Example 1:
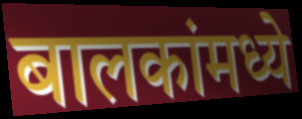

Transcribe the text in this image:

बालकांमध्ये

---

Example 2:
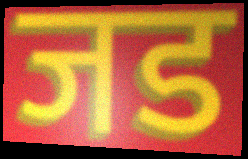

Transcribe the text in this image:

जड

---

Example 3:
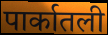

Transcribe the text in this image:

पार्कातली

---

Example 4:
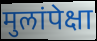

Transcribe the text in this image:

मुलांपेक्षा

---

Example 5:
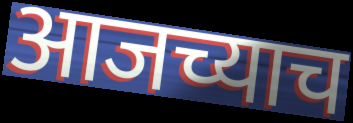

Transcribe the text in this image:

आजच्याच